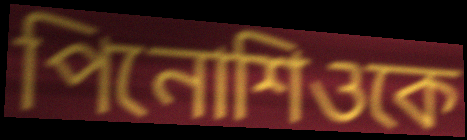
পিনোশিওকে